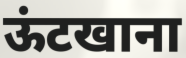
ऊंटखाना